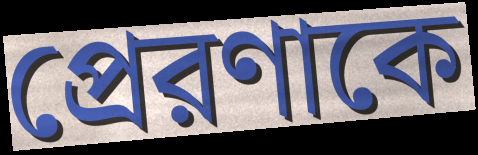
প্রেরণাকে